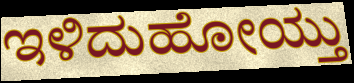
ಇಳಿದುಹೋಯ್ತು